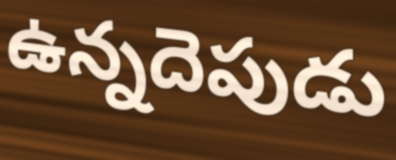
ఉన్నదెపుడు